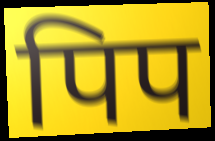
पिप